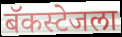
बॅकस्टेजला